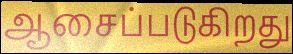
ஆசைப்படுகிறது